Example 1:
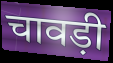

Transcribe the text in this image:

चावड़ी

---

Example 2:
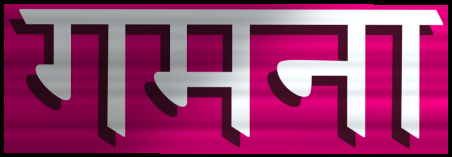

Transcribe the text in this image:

गमना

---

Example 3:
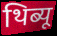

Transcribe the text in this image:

थिब्यू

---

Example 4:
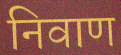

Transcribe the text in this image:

निवाण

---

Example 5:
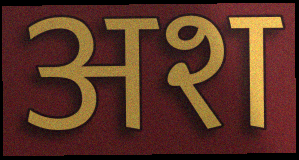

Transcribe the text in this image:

अश